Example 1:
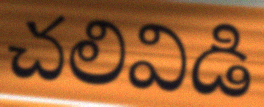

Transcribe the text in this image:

చలివిడి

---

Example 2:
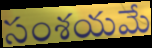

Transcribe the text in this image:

సంశయమే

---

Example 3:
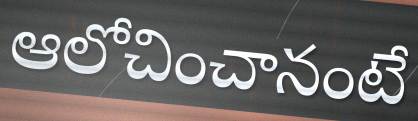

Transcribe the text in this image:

ఆలోచించానంటే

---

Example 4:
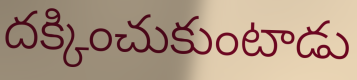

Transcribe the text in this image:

దక్కించుకుంటాడు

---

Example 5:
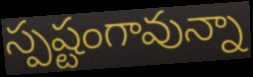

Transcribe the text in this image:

స్పష్టంగావున్నా